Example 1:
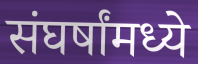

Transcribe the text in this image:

संघर्षांमध्ये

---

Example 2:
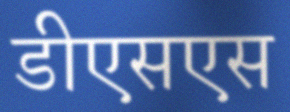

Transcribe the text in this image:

डीएसएस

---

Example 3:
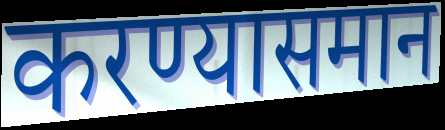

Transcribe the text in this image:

करण्यासमान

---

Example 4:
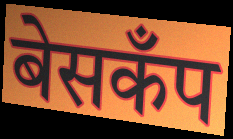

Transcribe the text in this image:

बेसकँप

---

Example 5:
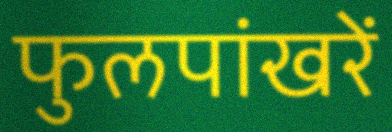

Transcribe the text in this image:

फुलपांखरें